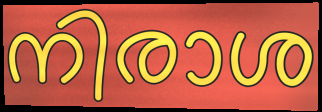
നിരാശ